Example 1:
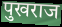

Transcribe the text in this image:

पुखराज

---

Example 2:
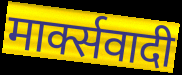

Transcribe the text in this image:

मार्क्सवादी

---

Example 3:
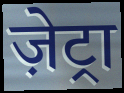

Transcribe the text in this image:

ज़ेट्रा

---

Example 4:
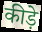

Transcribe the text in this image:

कीड़े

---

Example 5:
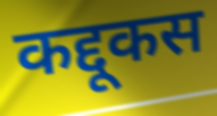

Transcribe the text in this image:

कद्दूकस